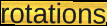
rotations